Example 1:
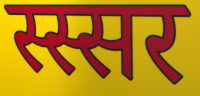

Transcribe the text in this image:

स्स्सर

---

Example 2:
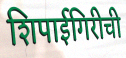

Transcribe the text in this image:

शिपाईगिरीची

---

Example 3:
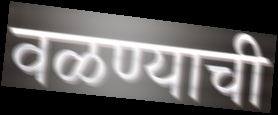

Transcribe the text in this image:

वळण्याची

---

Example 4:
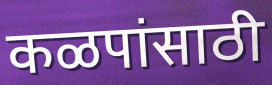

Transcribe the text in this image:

कळपांसाठी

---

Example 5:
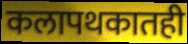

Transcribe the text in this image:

कलापथकातही